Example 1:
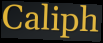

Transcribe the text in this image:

Caliph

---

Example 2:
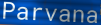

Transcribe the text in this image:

Parvana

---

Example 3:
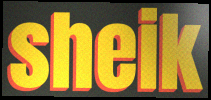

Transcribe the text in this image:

sheik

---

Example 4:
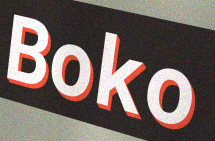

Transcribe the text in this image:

Boko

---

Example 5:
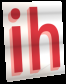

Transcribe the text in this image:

ih